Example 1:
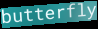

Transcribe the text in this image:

butterfly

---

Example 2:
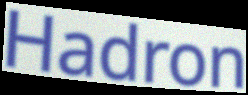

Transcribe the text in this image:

Hadron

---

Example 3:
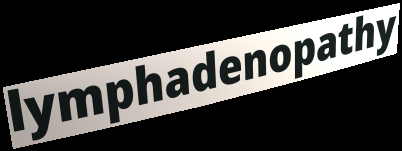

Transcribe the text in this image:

lymphadenopathy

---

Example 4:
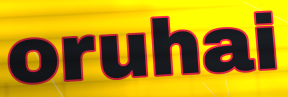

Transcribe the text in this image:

oruhai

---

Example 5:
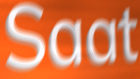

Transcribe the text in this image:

Saat